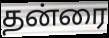
தன்ரை